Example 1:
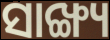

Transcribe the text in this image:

ସାଙ୍ଖ୍ୟ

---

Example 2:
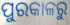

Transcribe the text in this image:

ପୁରକାଳରୁ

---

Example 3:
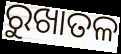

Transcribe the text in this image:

ରୁଖାତଳ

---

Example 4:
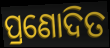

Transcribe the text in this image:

ପ୍ରଣୋଦିତ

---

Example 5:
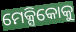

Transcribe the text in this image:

ମେକ୍ସିକୋକୁ